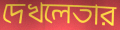
দেখলেতার